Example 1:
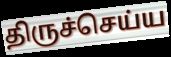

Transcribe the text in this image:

திருச்செய்ய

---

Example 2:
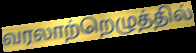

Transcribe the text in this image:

வரலாற்றெழுத்தில்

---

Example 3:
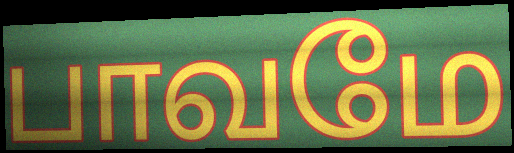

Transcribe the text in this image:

பாவமே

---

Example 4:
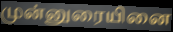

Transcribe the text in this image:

முன்னுரையினை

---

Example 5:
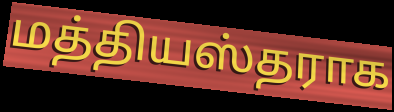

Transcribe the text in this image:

மத்தியஸ்தராக